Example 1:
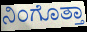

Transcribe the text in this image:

ನಿಂಗೊತ್ತಾ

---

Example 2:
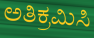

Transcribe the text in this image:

ಅತಿಕ್ರಮಿಸಿ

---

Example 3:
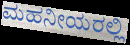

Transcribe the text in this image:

ಮಹನೀಯರಲ್ಲಿ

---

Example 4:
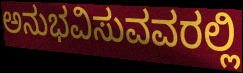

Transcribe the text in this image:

ಅನುಭವಿಸುವವರಲ್ಲಿ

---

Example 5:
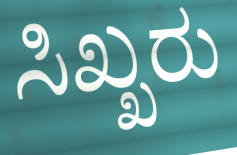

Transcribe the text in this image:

ಸಿಖ್ಖರು